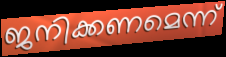
ജനിക്കണമെന്ന്